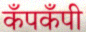
कँपकँपी